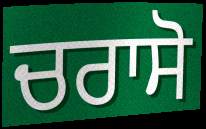
ਚਰਾਸੋ